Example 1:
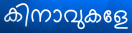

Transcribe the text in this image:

കിനാവുകളേ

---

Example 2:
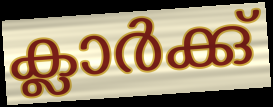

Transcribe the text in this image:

ക്ലാർക്കു്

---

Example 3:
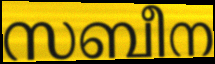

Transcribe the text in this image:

സബീന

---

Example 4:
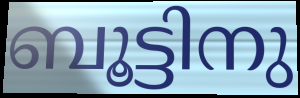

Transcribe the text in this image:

ബൂട്ടിനു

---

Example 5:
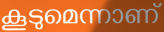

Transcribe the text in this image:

കൂടുമെന്നാണ്